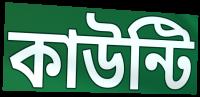
কাউন্টি